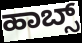
ಹಾಬ್ಸ್